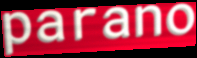
parano